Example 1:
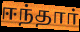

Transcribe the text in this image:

ஈந்தார்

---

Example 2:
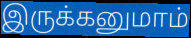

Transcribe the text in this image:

இருக்கனுமாம்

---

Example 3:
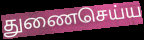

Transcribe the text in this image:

துணைசெய்ய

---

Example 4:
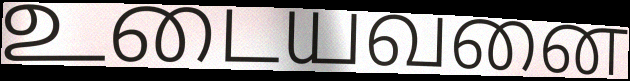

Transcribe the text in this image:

உடையவனை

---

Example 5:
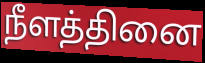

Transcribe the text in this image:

நீளத்தினை